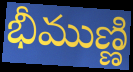
భీముణ్ణి